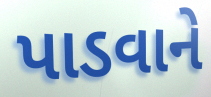
પાડવાને